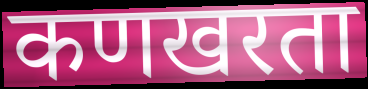
कणखरता